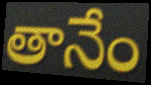
తానేం